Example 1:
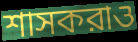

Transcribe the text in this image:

শাসকরাও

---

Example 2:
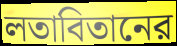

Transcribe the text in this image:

লতাবিতানের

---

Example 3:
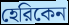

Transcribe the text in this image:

হেরিকেন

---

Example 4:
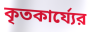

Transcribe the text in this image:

কৃতকার্য্যের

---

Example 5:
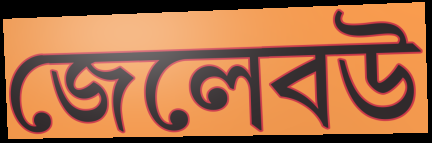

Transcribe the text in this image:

জেলেবউ